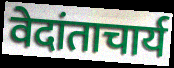
वेदांताचार्य